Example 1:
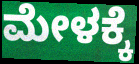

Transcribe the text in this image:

ಮೇಳಕ್ಕೆ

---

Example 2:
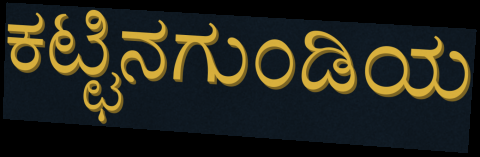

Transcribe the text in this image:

ಕಟ್ಟಿನಗುಂಡಿಯ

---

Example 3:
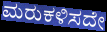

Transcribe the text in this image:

ಮರುಕಳಿಸದೇ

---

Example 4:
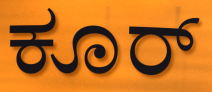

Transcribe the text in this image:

ಕೂರ್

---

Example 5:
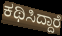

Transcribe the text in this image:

ಕಥಿಸಿದ್ದಾರೆ